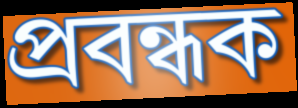
প্ৰবন্ধক